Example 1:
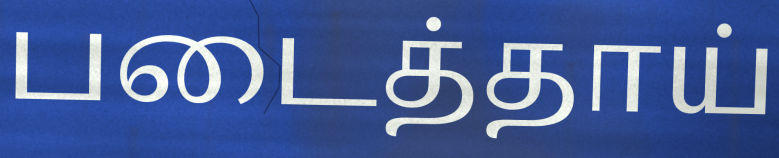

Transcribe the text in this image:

படைத்தாய்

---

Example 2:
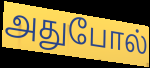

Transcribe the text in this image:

அதுபோல்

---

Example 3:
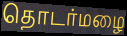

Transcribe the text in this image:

தொடர்மழை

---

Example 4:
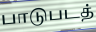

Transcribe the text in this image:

பாடுபடத்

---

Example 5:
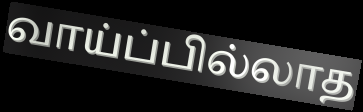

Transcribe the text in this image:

வாய்ப்பில்லாத